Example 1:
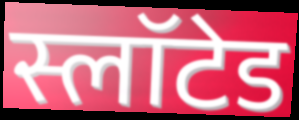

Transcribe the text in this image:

स्लॉटेड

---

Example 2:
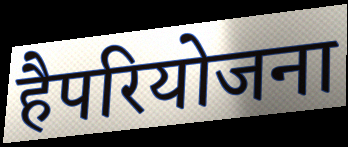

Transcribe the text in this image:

हैपरियोजना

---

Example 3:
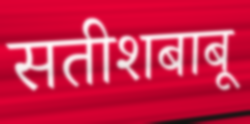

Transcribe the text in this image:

सतीशबाबू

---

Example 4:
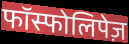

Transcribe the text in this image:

फॉस्फोलिपेज़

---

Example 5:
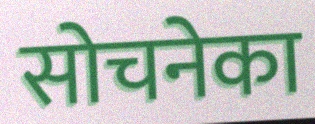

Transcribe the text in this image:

सोचनेका